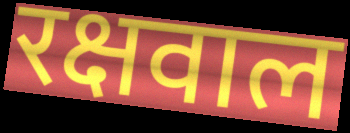
रक्षवाल